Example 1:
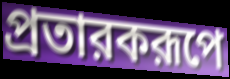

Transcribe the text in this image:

প্রতারকরূপে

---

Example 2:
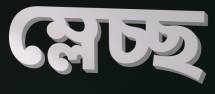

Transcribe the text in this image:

ম্লেচ্ছ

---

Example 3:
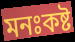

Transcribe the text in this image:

মনঃকষ্ট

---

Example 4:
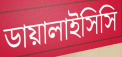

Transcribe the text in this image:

ডায়ালাইসিসি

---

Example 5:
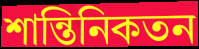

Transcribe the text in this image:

শান্তিনিকতন